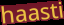
haasti